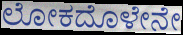
ಲೋಕದೊಳೇನೇ